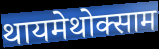
थायमेथोक्साम